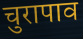
चुरापाव